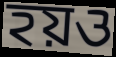
হয়ও